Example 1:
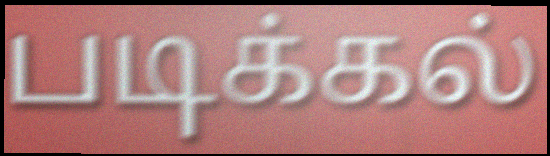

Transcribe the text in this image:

படிக்கல்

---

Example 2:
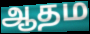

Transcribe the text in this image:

ஆதம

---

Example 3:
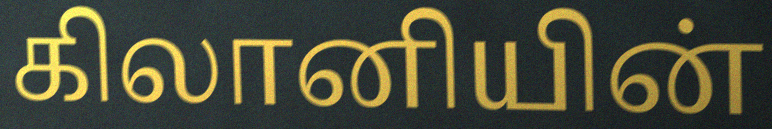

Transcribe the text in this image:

கிலானியின்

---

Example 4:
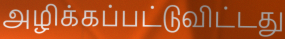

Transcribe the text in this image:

அழிக்கப்பட்டுவிட்டது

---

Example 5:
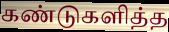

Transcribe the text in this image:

கண்டுகளித்த